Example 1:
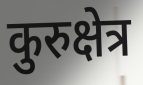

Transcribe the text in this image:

कुरुक्षेत्र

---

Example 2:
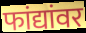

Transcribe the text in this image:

फांद्यांवर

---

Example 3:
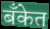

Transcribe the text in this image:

बँकेत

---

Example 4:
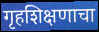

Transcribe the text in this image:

गृहशिक्षणाचा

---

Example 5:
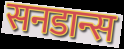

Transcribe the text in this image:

सनडान्स